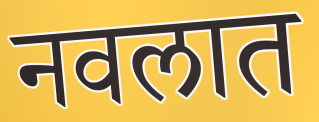
नवलात